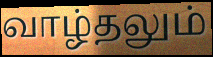
வாழ்தலும்